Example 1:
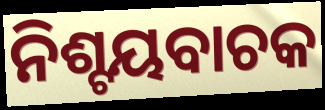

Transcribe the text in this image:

ନିଶ୍ଟୟବାଚକ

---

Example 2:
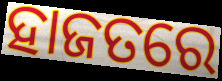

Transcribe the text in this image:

ହାଜତରେ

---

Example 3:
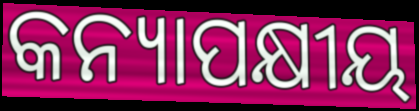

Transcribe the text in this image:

କନ୍ୟାପକ୍ଷୀୟ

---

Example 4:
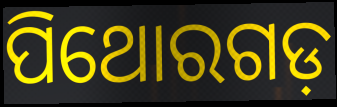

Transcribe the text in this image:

ପିଥୋରଗଡ଼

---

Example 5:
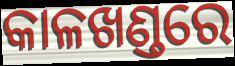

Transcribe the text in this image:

କାଳଖଣ୍ଡରେ